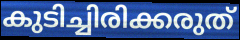
കുടിച്ചിരിക്കരുത്